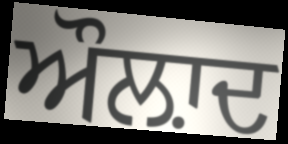
ਔਲ਼ਾਦ